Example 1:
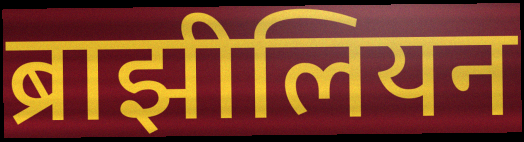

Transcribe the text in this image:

ब्राझीलियन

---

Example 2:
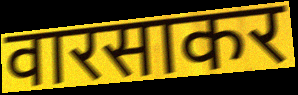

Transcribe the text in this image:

वारसाकर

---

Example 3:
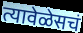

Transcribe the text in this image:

त्यावेळेसचं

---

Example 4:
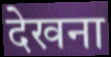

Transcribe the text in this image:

देखना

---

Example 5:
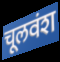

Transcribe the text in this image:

चूलवंश